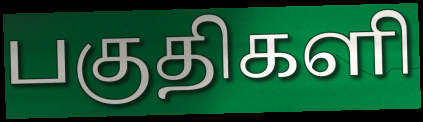
பகுதிகளி